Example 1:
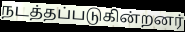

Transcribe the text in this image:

நடத்தப்படுகின்றனர்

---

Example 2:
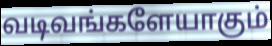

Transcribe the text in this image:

வடிவங்களேயாகும்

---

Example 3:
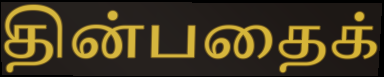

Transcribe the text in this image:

தின்பதைக்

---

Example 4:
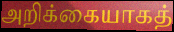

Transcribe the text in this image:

அறிக்கையாகத்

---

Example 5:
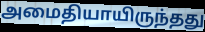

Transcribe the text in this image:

அமைதியாயிருந்தது